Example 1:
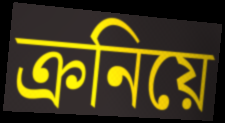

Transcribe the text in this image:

ক্রনিয়ে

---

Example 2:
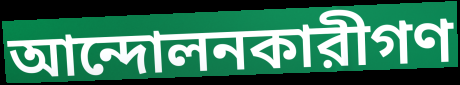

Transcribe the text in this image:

আন্দোলনকারীগণ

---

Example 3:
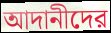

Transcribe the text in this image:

আদানীদের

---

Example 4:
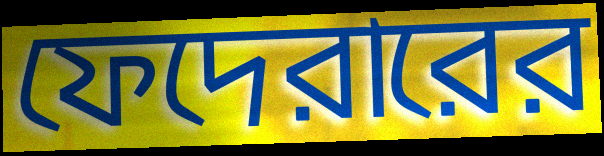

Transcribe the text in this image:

ফেদেরারের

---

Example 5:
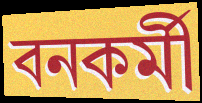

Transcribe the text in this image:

বনকর্মী